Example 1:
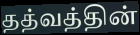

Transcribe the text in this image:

தத்வத்தின்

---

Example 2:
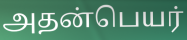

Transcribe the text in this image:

அதன்பெயர்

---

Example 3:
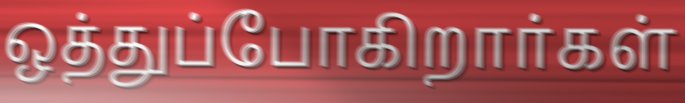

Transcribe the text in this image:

ஒத்துப்போகிறார்கள்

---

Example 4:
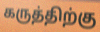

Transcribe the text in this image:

கருத்திற்கு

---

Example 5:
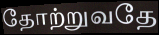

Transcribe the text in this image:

தோற்றுவதே